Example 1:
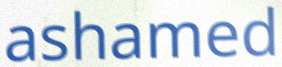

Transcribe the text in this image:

ashamed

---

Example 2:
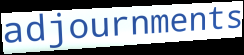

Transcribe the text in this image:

adjournments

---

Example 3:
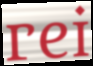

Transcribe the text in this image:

rei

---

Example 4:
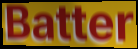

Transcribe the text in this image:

Batter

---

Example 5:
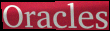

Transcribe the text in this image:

Oracles